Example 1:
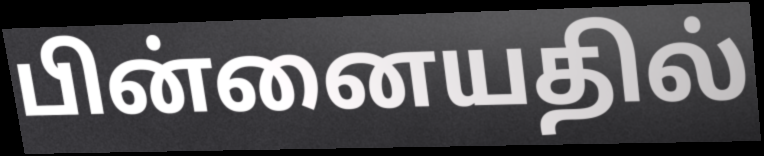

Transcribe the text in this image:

பின்னையதில்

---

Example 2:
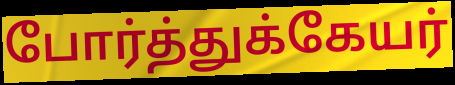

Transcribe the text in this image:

போர்த்துக்கேயர்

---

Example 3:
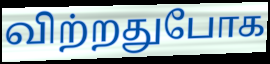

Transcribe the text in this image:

விற்றதுபோக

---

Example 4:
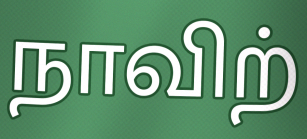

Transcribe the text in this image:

நாவிற்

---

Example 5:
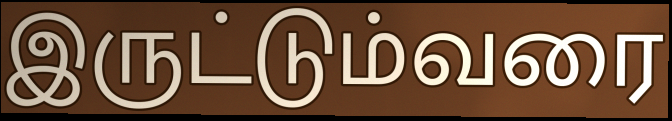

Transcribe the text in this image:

இருட்டும்வரை